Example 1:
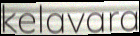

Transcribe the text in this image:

kelavara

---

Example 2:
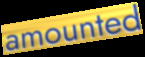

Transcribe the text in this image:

amounted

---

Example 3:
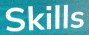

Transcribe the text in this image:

Skills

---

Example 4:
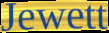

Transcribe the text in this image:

Jewett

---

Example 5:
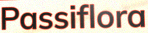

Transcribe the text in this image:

Passiflora